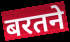
बरतने